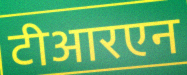
टीआरएन